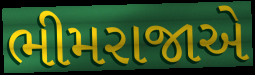
ભીમરાજાએ